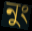
নুং